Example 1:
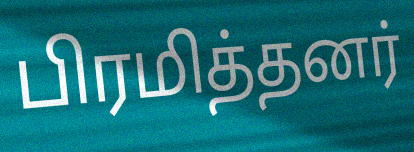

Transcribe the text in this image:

பிரமித்தனர்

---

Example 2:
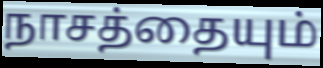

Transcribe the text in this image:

நாசத்தையும்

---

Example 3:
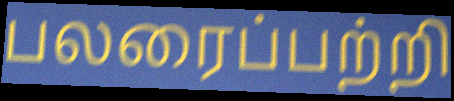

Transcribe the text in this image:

பலரைப்பற்றி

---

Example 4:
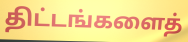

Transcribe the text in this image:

திட்டங்களைத்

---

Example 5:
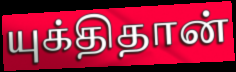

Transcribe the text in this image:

யுக்திதான்